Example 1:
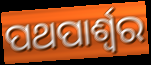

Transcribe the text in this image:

ପଥପାର୍ଶ୍ଵର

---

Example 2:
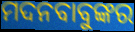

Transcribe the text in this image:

ମଦନବାବୁଙ୍କର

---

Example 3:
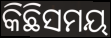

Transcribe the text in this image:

କିଛିସମୟ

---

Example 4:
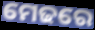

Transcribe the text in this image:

ମେଢରେ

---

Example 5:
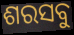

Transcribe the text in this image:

ଶରସବୁ